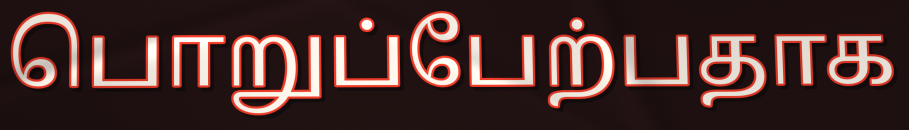
பொறுப்பேற்பதாக